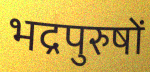
भद्रपुरुषों